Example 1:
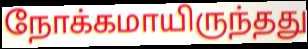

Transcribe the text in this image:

நோக்கமாயிருந்தது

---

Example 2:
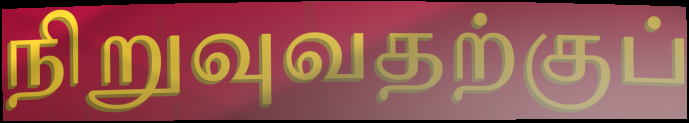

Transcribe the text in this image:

நிறுவுவதற்குப்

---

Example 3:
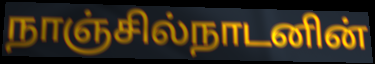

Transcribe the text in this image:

நாஞ்சில்நாடனின்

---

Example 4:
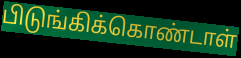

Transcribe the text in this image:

பிடுங்கிக்கொண்டாள்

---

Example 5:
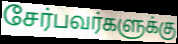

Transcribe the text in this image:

சேர்பவர்களுக்கு